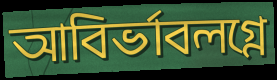
আবির্ভাবলগ্নে